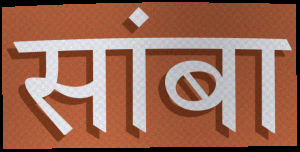
सांबा